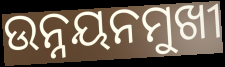
ଉନ୍ନୟନମୁଖୀ